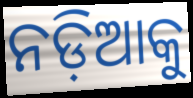
ନଡ଼ିଆକୁ